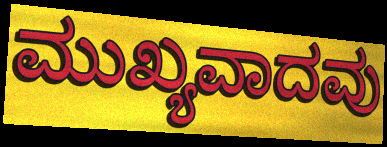
ಮುಖ್ಯವಾದವು